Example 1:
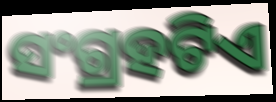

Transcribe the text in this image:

ସଂଗ୍ରହଟିଏ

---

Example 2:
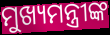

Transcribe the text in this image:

ମୁଖ୍ୟମନ୍ତ୍ରୀଙ୍କ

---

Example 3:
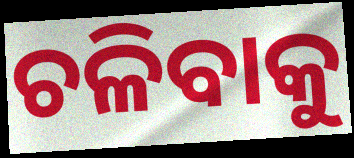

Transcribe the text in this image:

ଚଳିବାକୁ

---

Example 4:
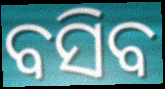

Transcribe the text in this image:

ବସିବ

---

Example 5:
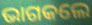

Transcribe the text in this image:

ଭାଗକଲେ